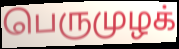
பெருமுழக்